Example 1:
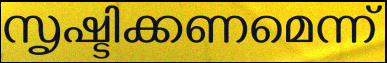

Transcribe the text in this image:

സൃഷ്ടിക്കണമെന്ന്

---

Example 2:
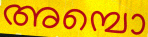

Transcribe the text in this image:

അമ്പൊ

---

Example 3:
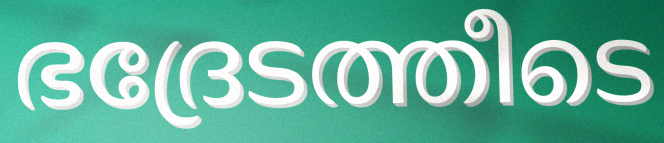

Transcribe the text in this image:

ഭദ്രേടത്തീടെ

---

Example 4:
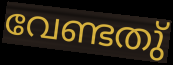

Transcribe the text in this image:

വേണ്ടതു്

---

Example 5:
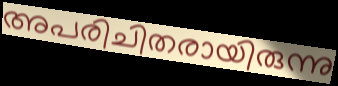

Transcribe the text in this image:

അപരിചിതരായിരുന്നു